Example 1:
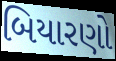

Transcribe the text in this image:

બિયારણો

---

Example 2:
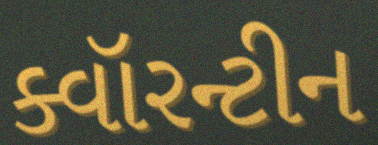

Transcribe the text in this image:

ક્વૉરન્ટીન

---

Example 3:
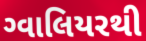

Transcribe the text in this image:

ગ્વાલિયરથી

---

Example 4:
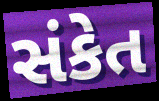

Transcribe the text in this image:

સંકેત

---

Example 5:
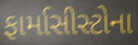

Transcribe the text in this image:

ફાર્માસીસ્ટોના